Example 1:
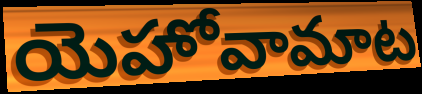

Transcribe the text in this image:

యెహోవామాట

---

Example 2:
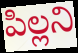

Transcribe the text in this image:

పిల్లని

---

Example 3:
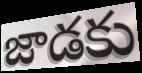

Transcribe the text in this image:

జాడకు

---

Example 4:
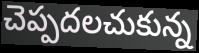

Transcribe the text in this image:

చెప్పదలచుకున్న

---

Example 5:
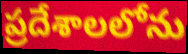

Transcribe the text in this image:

ప్రదేశాలలోను